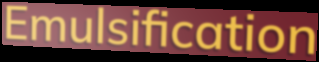
Emulsification